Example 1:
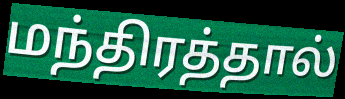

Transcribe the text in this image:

மந்திரத்தால்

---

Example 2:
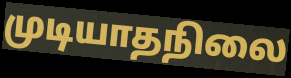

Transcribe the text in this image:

முடியாதநிலை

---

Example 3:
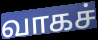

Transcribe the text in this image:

வாகச்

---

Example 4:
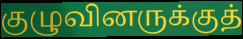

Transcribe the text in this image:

குழுவினருக்குத்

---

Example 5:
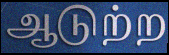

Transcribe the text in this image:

ஆடுற்ற